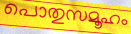
പൊതുസമൂഹം